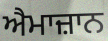
ਐਮਾਜ਼ਾਨ